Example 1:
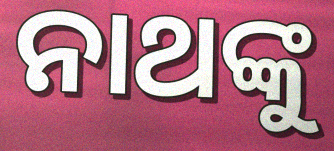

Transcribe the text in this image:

ନାଥଙ୍କୁ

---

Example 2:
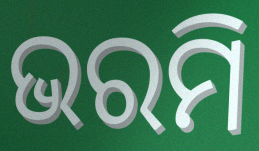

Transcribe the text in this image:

ଭରମି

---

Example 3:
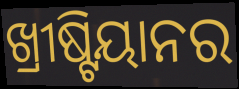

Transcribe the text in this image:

ଖ୍ରୀଷ୍ଟିୟାନର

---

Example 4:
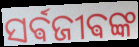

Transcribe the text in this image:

ସର୍ଵଜୀଵଙ୍କ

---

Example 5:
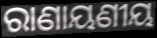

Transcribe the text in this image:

ରାଣାୟଣୀୟ